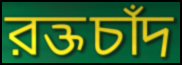
রক্তচাঁদ